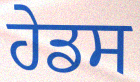
ਹੇਡਸ